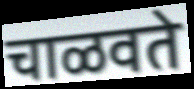
चाळवते